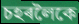
চহৰলৈকে